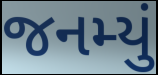
જનમ્યું